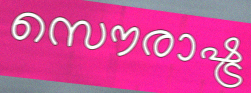
സൌരാഷ്ട്ര